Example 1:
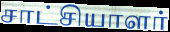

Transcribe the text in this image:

சாட்சியாளர்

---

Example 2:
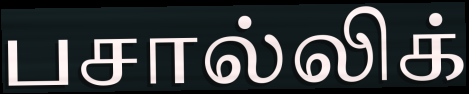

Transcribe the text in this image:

பசால்லிக்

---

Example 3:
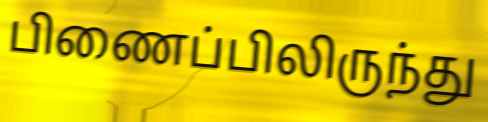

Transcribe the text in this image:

பிணைப்பிலிருந்து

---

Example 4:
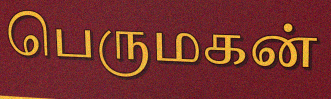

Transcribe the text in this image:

பெருமகன்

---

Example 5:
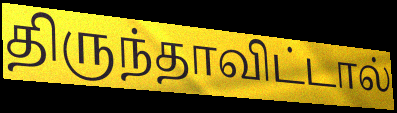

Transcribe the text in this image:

திருந்தாவிட்டால்